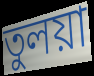
তুলয়া